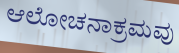
ಆಲೋಚನಾಕ್ರಮವು